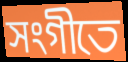
সংগীতে